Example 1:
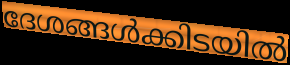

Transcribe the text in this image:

ദേശങ്ങൾക്കിടയിൽ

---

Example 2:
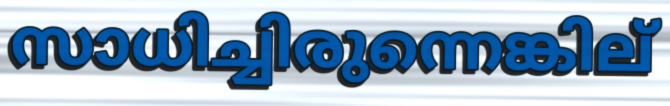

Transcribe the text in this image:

സാധിച്ചിരുന്നെങ്കില്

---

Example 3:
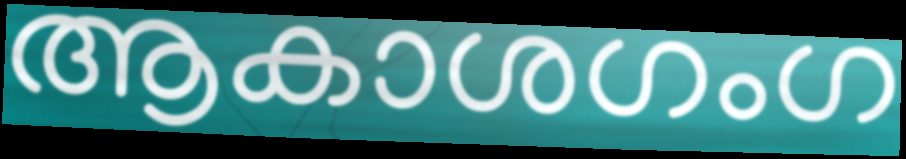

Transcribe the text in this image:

ആകാശഗംഗ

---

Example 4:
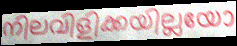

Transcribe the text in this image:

നിലവിളിക്കയില്ലയോ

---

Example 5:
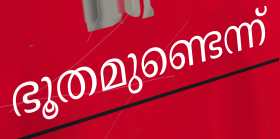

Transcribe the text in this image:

ഭൂതമുണ്ടെന്ന്